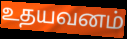
உதயவனம்